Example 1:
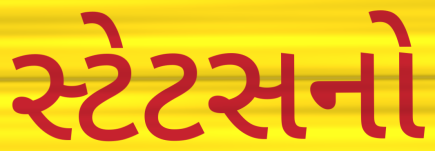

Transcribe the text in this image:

સ્ટેટસનો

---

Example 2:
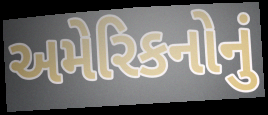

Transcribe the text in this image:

અમેરિકનોનું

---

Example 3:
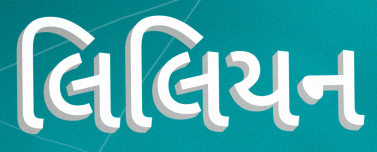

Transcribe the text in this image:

લિલિયન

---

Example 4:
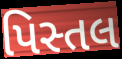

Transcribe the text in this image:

પિસ્તલ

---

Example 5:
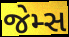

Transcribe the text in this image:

જેમ્સ